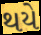
થયે